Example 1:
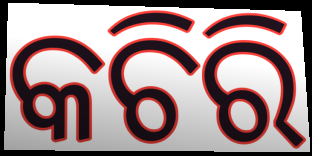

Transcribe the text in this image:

କଚିରି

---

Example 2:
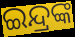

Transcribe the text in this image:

ଇନ୍ଦ୍ରଙ୍କ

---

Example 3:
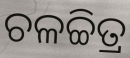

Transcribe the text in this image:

ଚଳଚ୍ଚିତ୍ର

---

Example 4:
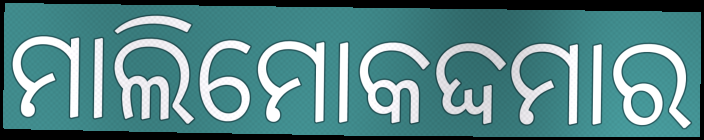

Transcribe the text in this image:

ମାଲିମୋକଦ୍ଦମାର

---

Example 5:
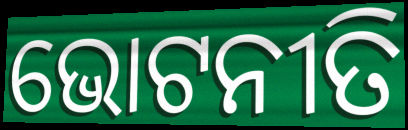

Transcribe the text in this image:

ଭୋଟନୀତି